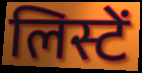
लिस्टें